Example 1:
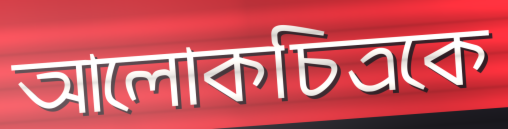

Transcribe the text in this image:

আলোকচিত্রকে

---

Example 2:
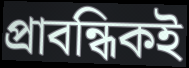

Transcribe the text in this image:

প্রাবন্ধিকই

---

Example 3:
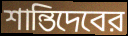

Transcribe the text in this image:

শান্তিদেবের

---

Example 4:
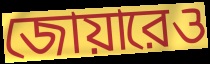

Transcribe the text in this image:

জোয়ারেও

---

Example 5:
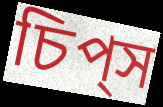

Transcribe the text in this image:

চিপ্‌স